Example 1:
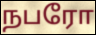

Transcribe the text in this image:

நபரோ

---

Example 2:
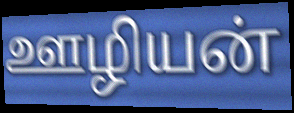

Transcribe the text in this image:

ஊழியன்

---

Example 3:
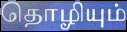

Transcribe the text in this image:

தொழியும்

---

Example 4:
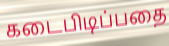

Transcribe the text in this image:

கடைபிடிப்பதை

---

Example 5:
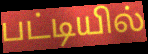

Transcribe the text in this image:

பட்டியில்